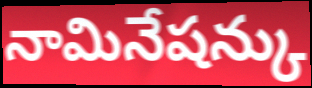
నామినేషన్కు